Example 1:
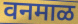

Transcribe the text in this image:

वनमाळ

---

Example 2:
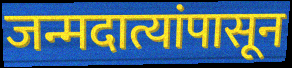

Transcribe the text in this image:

जन्मदात्यांपासून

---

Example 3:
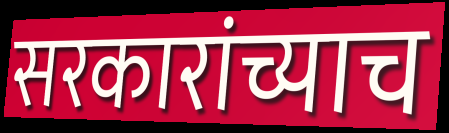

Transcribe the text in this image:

सरकारांच्याच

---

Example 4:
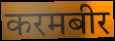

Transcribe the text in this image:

करमबीर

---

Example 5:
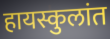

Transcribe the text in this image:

हायस्कुलांत